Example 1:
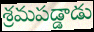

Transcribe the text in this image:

శ్రమపడ్డాడు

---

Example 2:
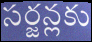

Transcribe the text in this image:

సర్జన్లకు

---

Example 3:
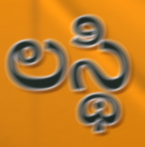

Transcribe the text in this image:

లస్థి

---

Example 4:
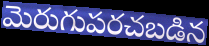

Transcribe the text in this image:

మెరుగుపరచబడిన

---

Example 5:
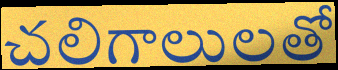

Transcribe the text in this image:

చలిగాలులతో